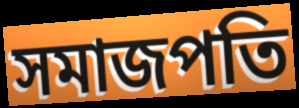
সমাজপতি